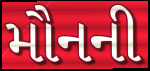
મૌનની